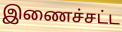
இணைச்சட்ட